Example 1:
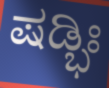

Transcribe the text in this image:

ಷಡ್ಭಿಃ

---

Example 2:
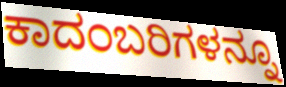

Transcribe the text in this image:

ಕಾದಂಬರಿಗಳನ್ನೂ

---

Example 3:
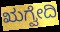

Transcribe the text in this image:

ಋಗ್ವೇದಿ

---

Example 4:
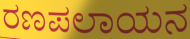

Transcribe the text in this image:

ರಣಪಲಾಯನ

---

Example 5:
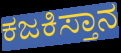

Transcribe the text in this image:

ಕಜಕಿಸ್ತಾನ